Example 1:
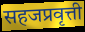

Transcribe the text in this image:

सहजप्रवृत्ती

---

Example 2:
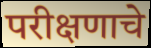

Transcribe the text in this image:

परीक्षणाचे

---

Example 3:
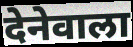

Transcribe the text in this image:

देनेवाला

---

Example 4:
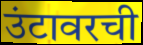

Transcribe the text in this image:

उंटावरची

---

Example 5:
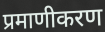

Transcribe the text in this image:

प्रमाणीकरण